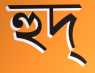
হুদ্